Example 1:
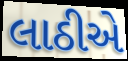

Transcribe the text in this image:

લાઠીએ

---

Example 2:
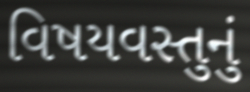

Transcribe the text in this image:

વિષયવસ્તુનું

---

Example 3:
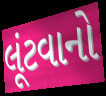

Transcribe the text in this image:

લૂંટવાનો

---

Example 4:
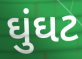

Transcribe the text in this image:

ઘુંઘટ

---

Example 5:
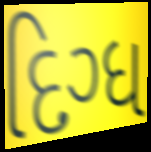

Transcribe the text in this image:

દિગ્ધ